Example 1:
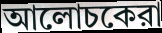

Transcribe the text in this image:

আলোচকেরা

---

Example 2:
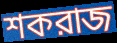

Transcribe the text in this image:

শকরাজ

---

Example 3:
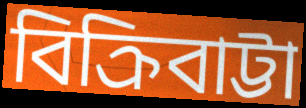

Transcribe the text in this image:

বিক্রিবাট্টা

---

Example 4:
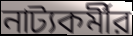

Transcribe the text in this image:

নাট্যকর্মীর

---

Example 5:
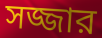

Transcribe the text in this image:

সজ্জার